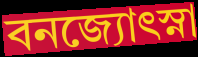
বনজ্যোৎস্না